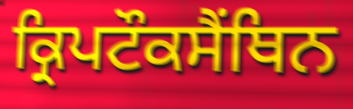
ਕ੍ਰਿਪਟੌਕਸੈਂਥਿਨ